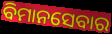
ବିମାନସେବାର